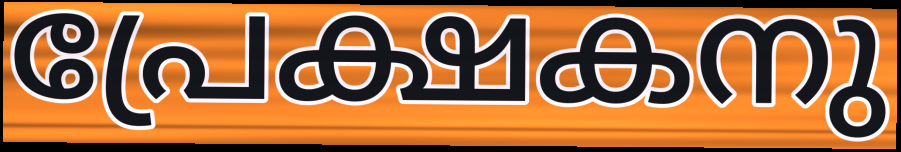
പ്രേക്ഷകനു